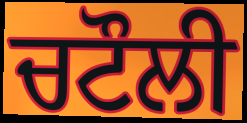
ਚਟੌਲੀ